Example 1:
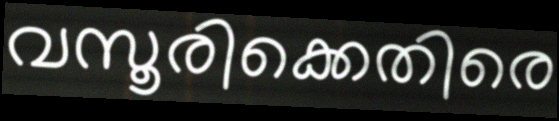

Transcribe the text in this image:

വസൂരിക്കെതിരെ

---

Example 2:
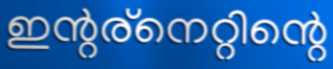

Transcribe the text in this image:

ഇന്റര്നെറ്റിന്റെ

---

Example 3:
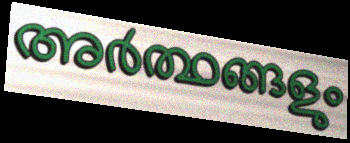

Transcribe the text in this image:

അർത്ഥങ്ങളും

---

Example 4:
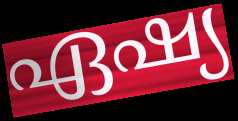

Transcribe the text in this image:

ഏഷ്യ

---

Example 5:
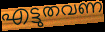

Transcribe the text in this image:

എട്ടുതവണ